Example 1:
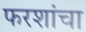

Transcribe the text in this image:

फरशांचा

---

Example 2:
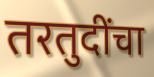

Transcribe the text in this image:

तरतुदींचा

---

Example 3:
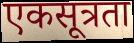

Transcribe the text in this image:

एकसूत्रता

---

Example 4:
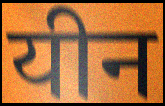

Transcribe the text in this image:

यीन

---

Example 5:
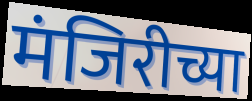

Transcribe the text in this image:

मंजिरीच्या